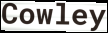
Cowley